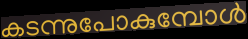
കടന്നുപോകുമ്പോൾ